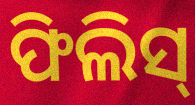
ଫିଲିସ୍